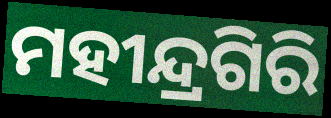
ମହୀନ୍ଦ୍ରଗିରି